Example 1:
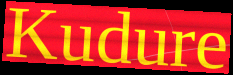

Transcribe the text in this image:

Kudure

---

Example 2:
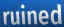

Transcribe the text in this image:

ruined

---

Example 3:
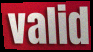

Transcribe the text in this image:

valid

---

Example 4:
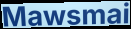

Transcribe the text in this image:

Mawsmai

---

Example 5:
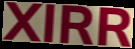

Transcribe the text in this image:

XIRR